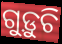
ଗୁଡ଼ୁଚି